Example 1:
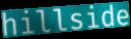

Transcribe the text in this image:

hillside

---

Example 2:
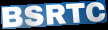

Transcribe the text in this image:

BSRTC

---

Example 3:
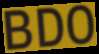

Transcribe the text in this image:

BDO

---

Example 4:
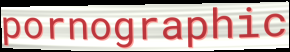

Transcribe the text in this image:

pornographic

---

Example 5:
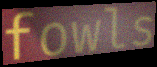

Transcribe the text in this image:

fowls